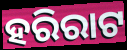
ହରିରାଟ